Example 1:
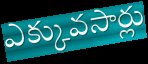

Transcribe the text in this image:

ఎక్కువసార్లు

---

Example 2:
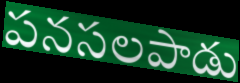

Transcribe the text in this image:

పనసలపాడు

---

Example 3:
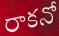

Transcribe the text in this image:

రాకనో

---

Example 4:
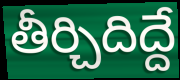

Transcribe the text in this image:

తీర్చిదిద్దే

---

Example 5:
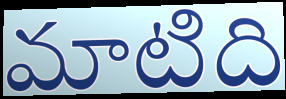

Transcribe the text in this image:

మాటిది